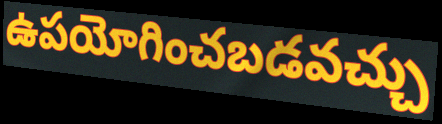
ఉపయోగించబడవచ్చు